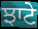
ਝਾਟੇ